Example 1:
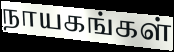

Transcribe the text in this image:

நாயகங்கள்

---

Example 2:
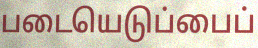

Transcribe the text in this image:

படையெடுப்பைப்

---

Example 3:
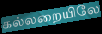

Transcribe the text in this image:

கல்லறையிலே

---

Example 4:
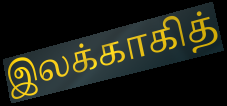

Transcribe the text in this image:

இலக்காகித்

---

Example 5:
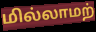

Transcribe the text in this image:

மில்லாமற்